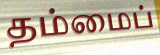
தம்மைப்